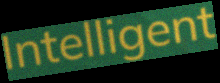
Intelligent